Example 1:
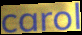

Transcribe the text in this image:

carol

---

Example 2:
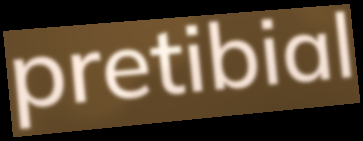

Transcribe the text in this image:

pretibial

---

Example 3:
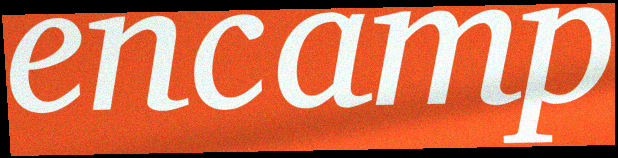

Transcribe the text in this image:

encamp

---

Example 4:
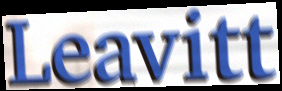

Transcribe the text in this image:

Leavitt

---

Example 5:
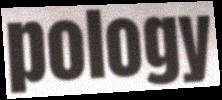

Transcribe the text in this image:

pology